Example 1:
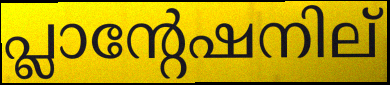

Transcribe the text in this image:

പ്ലാന്റേഷനില്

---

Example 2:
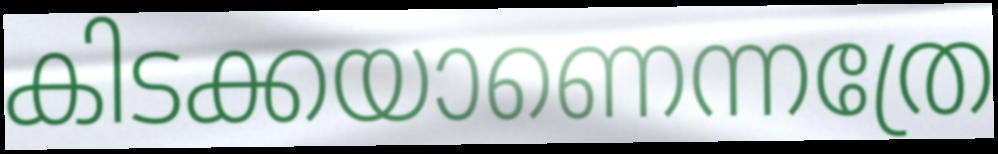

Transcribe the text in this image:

കിടക്കയാണെന്നത്രേ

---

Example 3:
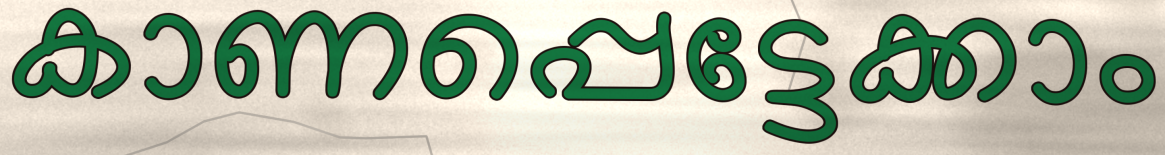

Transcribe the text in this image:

കാണപ്പെട്ടേക്കാം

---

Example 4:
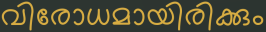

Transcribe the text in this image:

വിരോധമായിരിക്കും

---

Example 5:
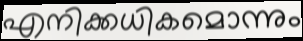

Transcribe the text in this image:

എനിക്കധികമൊന്നും